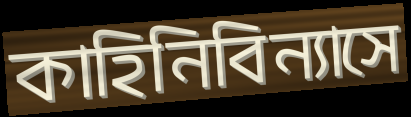
কাহিনিবিন্যাসে